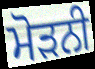
ਮੋੜਨੀ